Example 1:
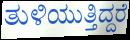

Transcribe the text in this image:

ತುಳಿಯುತ್ತಿದ್ದರೆ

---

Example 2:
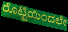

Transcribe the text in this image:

ರೊಟ್ಟಿಯಿಂದಲೇ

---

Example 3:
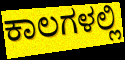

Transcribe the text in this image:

ಕಾಲಗಳಲ್ಲಿ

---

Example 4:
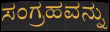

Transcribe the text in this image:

ಸಂಗ್ರಹವನ್ನು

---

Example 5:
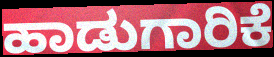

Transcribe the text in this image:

ಹಾಡುಗಾರಿಕೆ